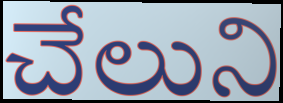
చేలుని